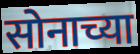
सोनाच्या